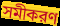
সমীকরণ